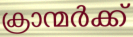
ക്രാന്മർക്ക്